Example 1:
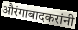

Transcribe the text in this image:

औरंगाबादकरांनी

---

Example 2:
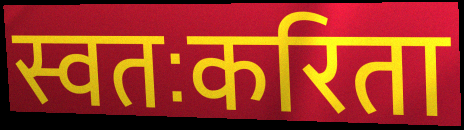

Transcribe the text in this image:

स्वतःकरिता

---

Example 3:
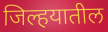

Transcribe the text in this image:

जिल्हयातील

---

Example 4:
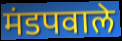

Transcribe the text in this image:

मंडपवाले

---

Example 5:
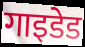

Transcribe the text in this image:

गाइडेड